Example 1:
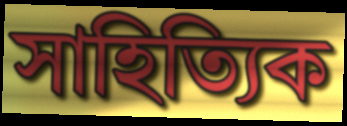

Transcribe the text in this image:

সাহিত্যিক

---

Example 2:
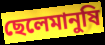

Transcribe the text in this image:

ছেলেমানুষি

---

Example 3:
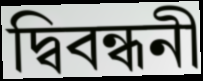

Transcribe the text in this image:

দ্বিবন্ধনী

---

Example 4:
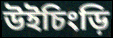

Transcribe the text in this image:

উইচিংড়ি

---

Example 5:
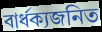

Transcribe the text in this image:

বার্ধক্যজনিত